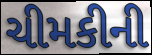
ચીમકીની